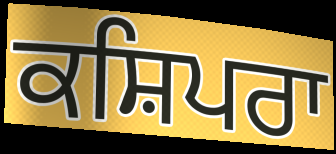
ਕਸ਼ਿਪਰਾ